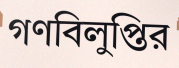
গণবিলুপ্তির